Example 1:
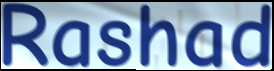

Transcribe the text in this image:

Rashad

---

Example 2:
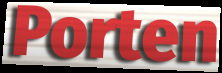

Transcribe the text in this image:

Porten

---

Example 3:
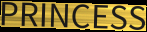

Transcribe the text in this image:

PRINCESS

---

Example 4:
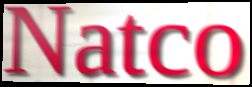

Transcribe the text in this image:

Natco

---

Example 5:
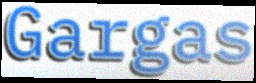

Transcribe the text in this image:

Gargas